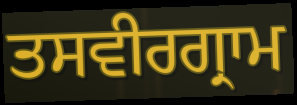
ਤਸਵੀਰਗ੍ਰਾਮ